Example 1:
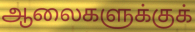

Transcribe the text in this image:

ஆலைகளுக்குக்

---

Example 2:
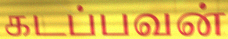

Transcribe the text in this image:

கடப்பவன்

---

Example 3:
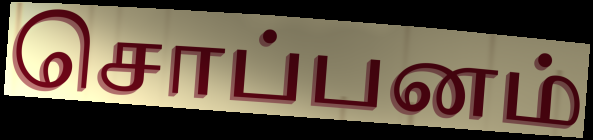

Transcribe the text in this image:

சொப்பனம்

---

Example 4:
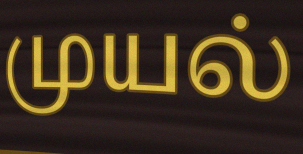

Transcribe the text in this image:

முயல்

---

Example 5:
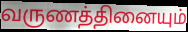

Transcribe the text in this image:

வருணத்தினையும்